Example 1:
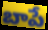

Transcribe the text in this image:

బాపే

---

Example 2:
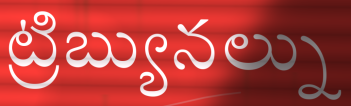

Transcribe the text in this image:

ట్రిబ్యునల్ను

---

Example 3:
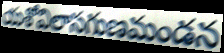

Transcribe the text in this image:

యశోవిలాసగుణమండన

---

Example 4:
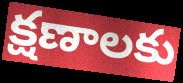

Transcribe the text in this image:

క్షణాలకు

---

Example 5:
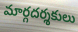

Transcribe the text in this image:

మార్గదర్శకులు